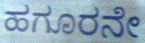
ಹಗೂರನೇ